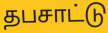
தபசாட்டு